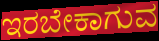
ಇರಬೇಕಾಗುವ